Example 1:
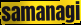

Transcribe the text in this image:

samanagi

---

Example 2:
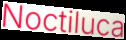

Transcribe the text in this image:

Noctiluca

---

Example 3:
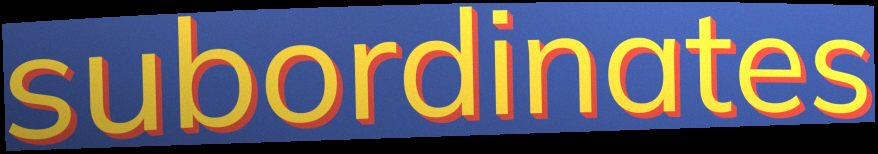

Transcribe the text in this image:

subordinates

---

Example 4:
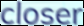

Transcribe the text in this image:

closer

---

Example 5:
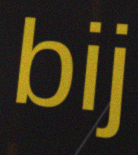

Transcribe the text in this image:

bij